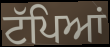
ਟੱਪਿਆਂ